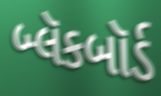
બ્લૅકબૉર્ડ